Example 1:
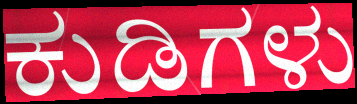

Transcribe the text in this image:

ಕುಡಿಗಳು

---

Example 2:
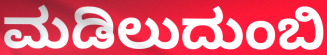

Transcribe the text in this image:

ಮಡಿಲುದುಂಬಿ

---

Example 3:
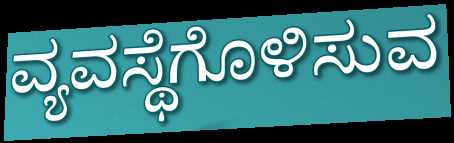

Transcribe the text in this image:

ವ್ಯವಸ್ಥೆಗೊಳಿಸುವ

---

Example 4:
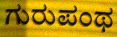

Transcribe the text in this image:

ಗುರುಪಂಥ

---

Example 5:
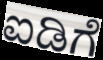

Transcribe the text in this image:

ಐಡಿಗೆ